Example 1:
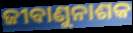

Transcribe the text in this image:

ଜୀବାଣୁନାଶକ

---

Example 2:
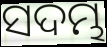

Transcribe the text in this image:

ସଦମ୍ଭ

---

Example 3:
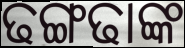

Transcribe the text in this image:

ଢଙ୍ଗଢାଙ୍କ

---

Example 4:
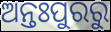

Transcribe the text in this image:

ଅନ୍ତଃପୁରରୁ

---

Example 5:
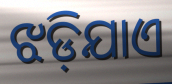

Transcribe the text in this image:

ଝଡ଼ିଯାଏ